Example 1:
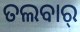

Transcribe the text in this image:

ତଲବାର୍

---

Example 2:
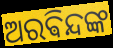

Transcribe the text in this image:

ଅରଵିନ୍ଦଙ୍କ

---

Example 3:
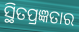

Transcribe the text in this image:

ସ୍ଥିତପ୍ରଜ୍ଞତାର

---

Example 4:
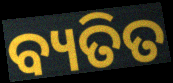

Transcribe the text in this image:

ବ୍ୟତିତ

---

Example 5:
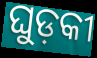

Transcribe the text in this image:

ଘୁଡ଼କୀ